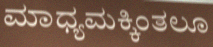
ಮಾಧ್ಯಮಕ್ಕಿಂತಲೂ